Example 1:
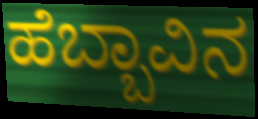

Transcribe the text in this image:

ಹೆಬ್ಬಾವಿನ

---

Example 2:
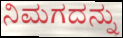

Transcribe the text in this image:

ನಿಮಗದನ್ನು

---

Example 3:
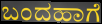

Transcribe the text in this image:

ಬಂದಹಾಗೆ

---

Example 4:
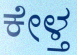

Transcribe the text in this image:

ಕೇಳ್ತ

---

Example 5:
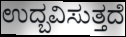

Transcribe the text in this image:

ಉದ್ಬವಿಸುತ್ತದೆ